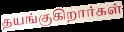
தயங்குகிறார்கள்